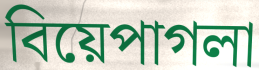
বিয়েপাগলা